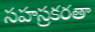
సహస్రకరతా